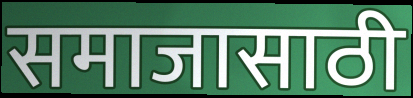
समाजासाठी